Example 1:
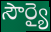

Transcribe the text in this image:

సౌర్యై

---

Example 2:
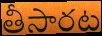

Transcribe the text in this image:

తీసారట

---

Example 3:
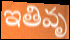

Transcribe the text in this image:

ఇతివృ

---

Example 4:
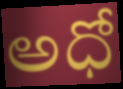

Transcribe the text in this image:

అధో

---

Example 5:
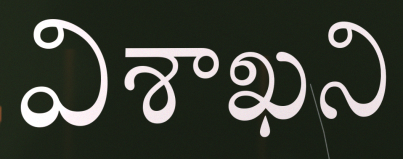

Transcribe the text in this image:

విశాఖని